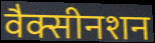
वैक्सीनशन